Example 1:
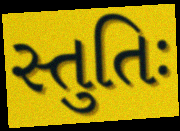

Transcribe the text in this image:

સ્તુતિઃ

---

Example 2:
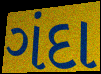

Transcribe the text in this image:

ગંદા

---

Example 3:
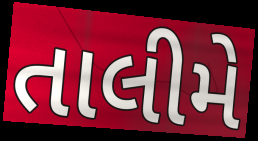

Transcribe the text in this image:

તાલીમે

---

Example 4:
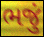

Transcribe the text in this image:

ભજું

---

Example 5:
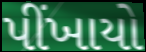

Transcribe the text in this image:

પીંખાયો